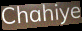
Chahiye